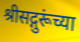
श्रीसद्गुरूंच्या